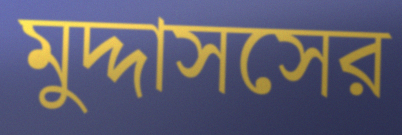
মুদ্দাসসের